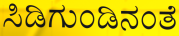
ಸಿಡಿಗುಂಡಿನಂತೆ